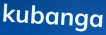
kubanga